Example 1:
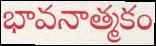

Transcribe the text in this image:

భావనాత్మకం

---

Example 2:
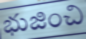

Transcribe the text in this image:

భుజించి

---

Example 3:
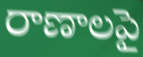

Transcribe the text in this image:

రాణాలపై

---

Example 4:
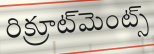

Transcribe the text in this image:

రిక్రూట్‌మెంట్స్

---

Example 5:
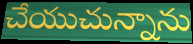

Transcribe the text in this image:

చేయుచున్నాను